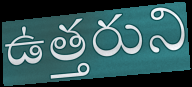
ఉత్తరుని